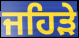
ਜਹਿੜੇ